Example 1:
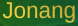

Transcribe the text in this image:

Jonang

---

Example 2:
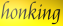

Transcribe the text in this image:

honking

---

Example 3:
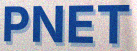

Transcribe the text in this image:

PNET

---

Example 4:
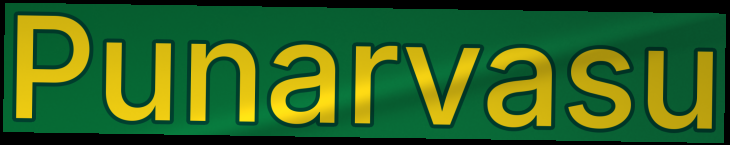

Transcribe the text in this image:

Punarvasu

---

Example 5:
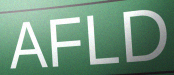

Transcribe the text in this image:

AFLD